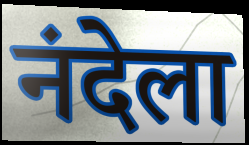
नंदेला